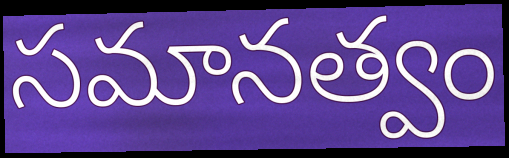
సమానత్వం